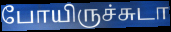
போயிருச்சுடா